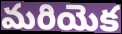
మరియెక